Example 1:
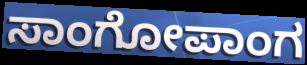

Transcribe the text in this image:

ಸಾಂಗೋಪಾಂಗ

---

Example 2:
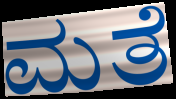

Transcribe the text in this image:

ಮತೆ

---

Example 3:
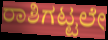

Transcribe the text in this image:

ರಾಶಿಗಟ್ಟಲೇ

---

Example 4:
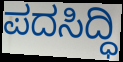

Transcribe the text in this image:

ಪದಸಿದ್ಧಿ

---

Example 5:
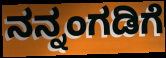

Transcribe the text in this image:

ನನ್ನಂಗಡಿಗೆ